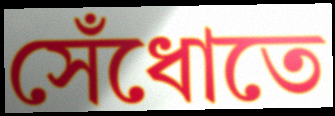
সেঁধোতে